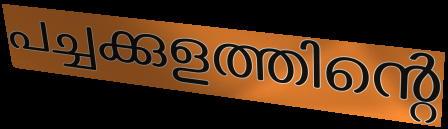
പച്ചക്കുളത്തിന്റെ